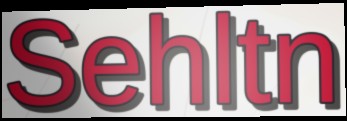
Sehltn